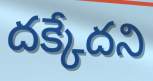
దక్కేదని